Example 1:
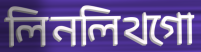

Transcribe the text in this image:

লিনলিথগো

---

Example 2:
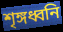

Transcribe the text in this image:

শৃঙ্গধ্বনি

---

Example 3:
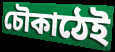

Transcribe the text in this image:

চৌকাঠেই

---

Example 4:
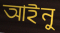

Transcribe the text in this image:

আইনু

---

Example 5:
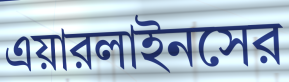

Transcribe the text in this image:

এয়ারলাইনসের